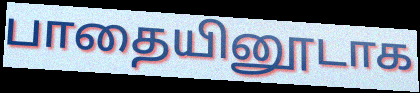
பாதையினூடாக